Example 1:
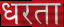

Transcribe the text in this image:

धरता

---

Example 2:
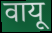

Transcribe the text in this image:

वायू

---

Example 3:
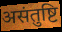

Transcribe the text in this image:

असंतुष्टि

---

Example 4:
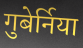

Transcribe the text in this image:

गुबेर्निया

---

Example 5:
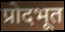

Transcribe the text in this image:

प्रोदभूत